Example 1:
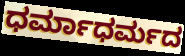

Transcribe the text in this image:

ಧರ್ಮಾಧರ್ಮದ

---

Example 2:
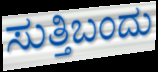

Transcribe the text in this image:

ಸುತ್ತಿಬಂದು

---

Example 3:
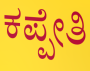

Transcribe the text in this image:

ಕಪ್ಪೇತಿ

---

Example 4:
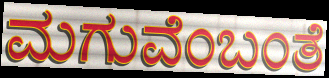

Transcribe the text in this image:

ಮಗುವೆಂಬಂತೆ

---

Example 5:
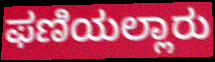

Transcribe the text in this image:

ಫಣಿಯಲ್ಲಾರು